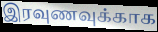
இரவுணவுக்காக